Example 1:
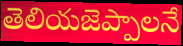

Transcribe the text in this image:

తెలియజెప్పాలనే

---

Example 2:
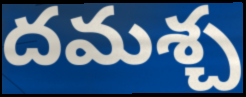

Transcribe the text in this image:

దమశ్చ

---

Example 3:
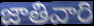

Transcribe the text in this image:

జాతివారి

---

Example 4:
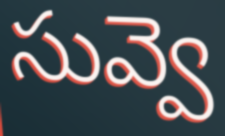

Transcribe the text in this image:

సువ్వె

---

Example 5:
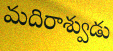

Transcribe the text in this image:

మదిరాశ్వుడు